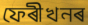
ফেৰীখনৰ